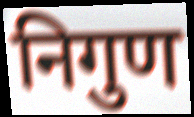
निगुण